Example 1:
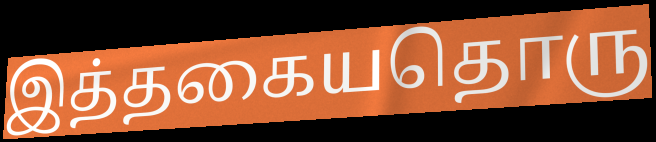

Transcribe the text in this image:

இத்தகையதொரு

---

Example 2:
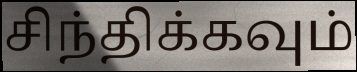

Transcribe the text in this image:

சிந்திக்கவும்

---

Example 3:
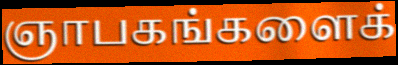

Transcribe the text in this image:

ஞாபகங்களைக்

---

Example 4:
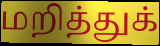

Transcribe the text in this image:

மறித்துக்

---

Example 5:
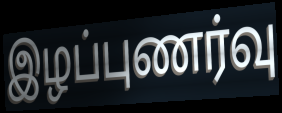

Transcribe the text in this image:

இழப்புணர்வு